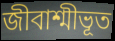
জীবাশ্মীভূত